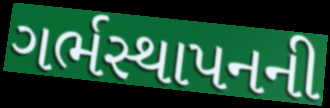
ગર્ભસ્થાપનની